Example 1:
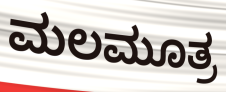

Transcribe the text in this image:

ಮಲಮೂತ್ರ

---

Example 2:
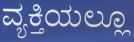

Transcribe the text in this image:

ವ್ಯಕ್ತಿಯಲ್ಲೂ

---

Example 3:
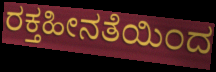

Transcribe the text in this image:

ರಕ್ತಹೀನತೆಯಿಂದ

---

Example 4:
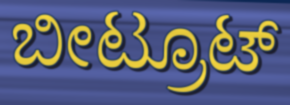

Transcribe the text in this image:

ಬೀಟ್ರೂಟ್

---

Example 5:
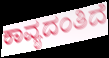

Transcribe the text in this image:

ಕಾವ್ಯದಂತಿದೆ